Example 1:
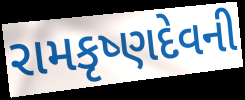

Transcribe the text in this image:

રામકૃષ્ણદેવની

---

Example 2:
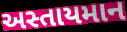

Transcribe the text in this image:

અસ્તાયમાન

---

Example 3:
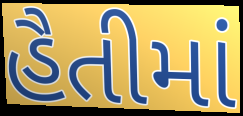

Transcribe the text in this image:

હૈતીમાં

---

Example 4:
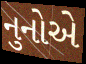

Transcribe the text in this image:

નુનોએ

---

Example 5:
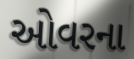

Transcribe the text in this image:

ઓવરના